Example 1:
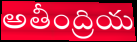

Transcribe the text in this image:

అతీంద్రియ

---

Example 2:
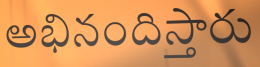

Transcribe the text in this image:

అభినందిస్తారు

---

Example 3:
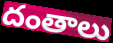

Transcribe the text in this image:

దంతాలు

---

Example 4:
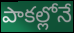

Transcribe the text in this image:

పాకల్లోనే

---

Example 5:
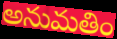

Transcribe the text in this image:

అనుమతిం